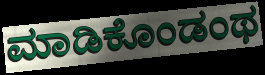
ಮಾಡಿಕೊಂಡಂಥ